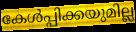
കേൾപ്പിക്കയുമില്ല